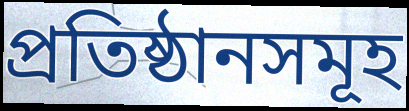
প্ৰতিষ্ঠানসমূহ